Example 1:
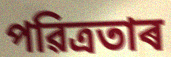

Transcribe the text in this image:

পৱিত্ৰতাৰ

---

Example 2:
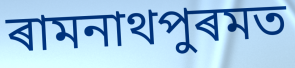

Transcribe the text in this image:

ৰামনাথপুৰমত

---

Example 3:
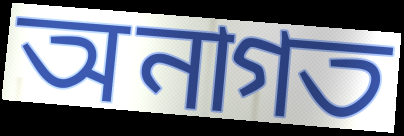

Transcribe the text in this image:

অনাগত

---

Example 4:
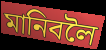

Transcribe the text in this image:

মানিবলৈ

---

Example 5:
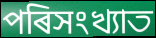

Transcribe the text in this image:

পৰিসংখ্যাত